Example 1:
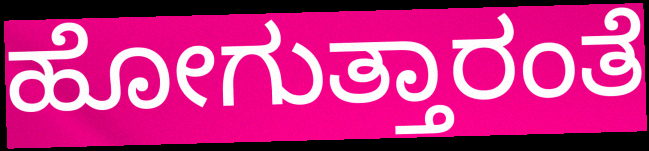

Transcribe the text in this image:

ಹೋಗುತ್ತಾರಂತೆ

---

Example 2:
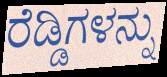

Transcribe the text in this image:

ರೆಡ್ಡಿಗಳನ್ನು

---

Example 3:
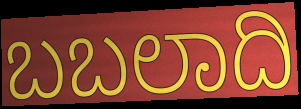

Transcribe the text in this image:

ಬಬಲಾದಿ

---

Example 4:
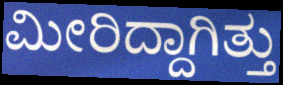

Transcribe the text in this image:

ಮೀರಿದ್ದಾಗಿತ್ತು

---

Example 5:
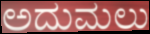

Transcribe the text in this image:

ಅದುಮಲು